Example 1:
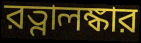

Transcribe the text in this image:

রত্নালঙ্কার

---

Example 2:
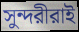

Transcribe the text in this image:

সুন্দরীরাই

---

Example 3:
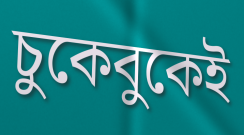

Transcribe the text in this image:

চুকেবুকেই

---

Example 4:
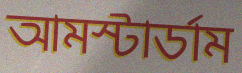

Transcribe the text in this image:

আমস্টার্ডাম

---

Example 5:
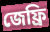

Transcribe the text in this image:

জেফ্রি